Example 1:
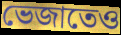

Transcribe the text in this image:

ভেজাতেও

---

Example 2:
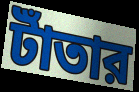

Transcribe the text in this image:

টাঁতার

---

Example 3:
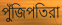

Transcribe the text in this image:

পুঁজিপতিরা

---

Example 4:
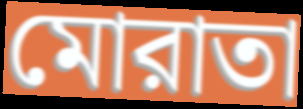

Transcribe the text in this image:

মোরাতা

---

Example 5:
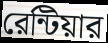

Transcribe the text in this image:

রেন্টিয়ার